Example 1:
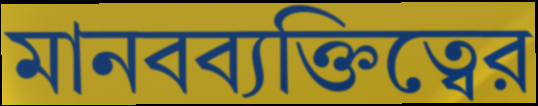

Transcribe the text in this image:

মানবব্যক্তিত্বের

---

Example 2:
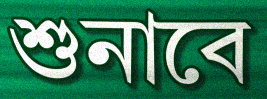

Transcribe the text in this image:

শুনাবে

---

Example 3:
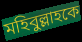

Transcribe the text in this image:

মহিবুল্লাহকে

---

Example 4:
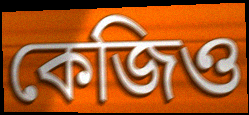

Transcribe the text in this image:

কেজিও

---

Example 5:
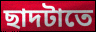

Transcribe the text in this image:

ছাদটাতে